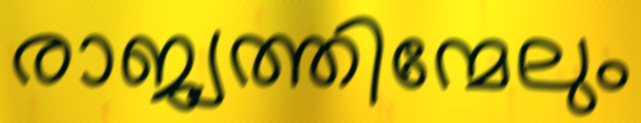
രാജ്യത്തിന്മേലും